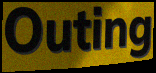
Outing